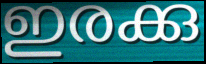
ഇരക്കു